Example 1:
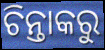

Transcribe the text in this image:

ଚିନ୍ତାକରୁ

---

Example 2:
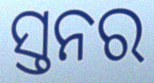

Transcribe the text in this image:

ସ୍ତନର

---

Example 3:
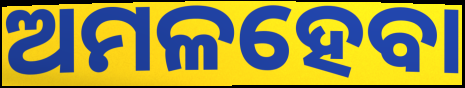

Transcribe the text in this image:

ଅମଳହେବା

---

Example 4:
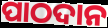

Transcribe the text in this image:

ପାଠଦାନ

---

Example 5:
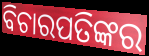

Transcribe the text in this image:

ବିଚାରପତିଙ୍କର